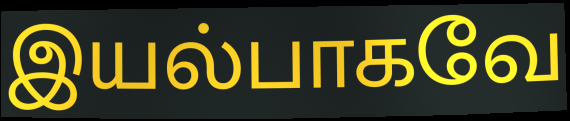
இயல்பாகவே